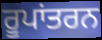
ਰੂਪਾਂਤਰਨ